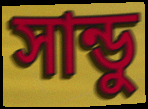
সান্ডু